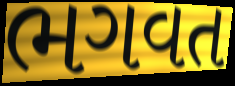
ભગવત